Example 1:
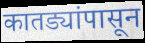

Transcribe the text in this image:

कातड्यांपासून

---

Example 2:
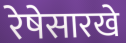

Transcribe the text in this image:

रेषेसारखे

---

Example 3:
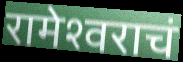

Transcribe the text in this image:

रामेश्वराचं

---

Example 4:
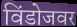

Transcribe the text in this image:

विंडोजवर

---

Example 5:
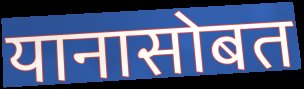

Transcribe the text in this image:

यानासोबत